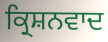
ਕ੍ਰਿਸ਼ਨਵਾਦ